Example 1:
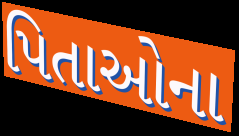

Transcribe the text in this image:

પિતાઓના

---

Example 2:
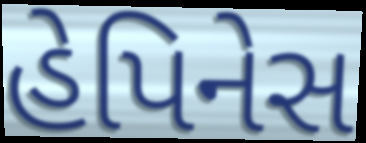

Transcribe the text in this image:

હેપિનેસ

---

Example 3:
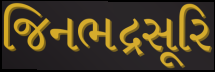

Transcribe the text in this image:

જિનભદ્રસૂરિ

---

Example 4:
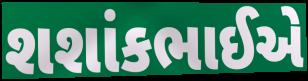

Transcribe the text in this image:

શશાંકભાઈએ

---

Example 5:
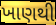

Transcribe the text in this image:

ખાણથી